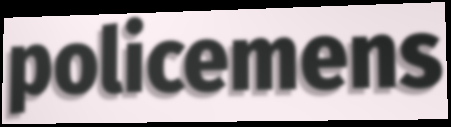
policemens